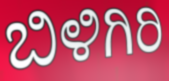
ಬಿಳಿಗಿರಿ